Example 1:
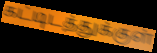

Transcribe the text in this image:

கட்டிடத்துக்குள்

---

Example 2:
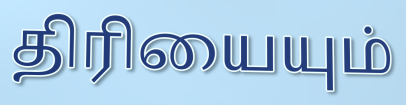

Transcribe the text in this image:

திரியையும்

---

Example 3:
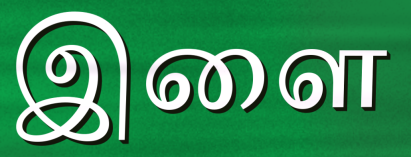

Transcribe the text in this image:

இளை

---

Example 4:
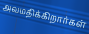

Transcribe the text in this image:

அவமதிக்கிறார்கள்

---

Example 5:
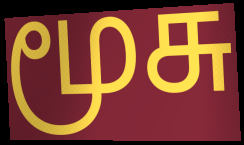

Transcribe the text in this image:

மூசு